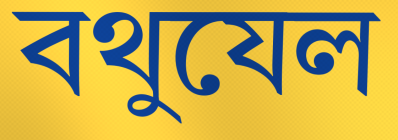
বথুযেল